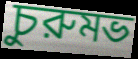
চুরুমভ